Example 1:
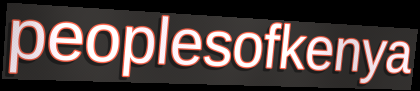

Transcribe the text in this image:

peoplesofkenya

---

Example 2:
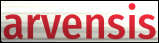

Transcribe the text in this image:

arvensis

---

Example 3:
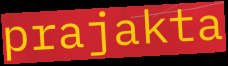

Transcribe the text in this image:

prajakta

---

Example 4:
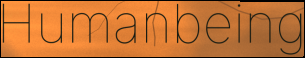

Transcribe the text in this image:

Humanbeing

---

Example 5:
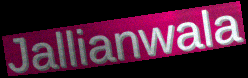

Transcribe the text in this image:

Jallianwala